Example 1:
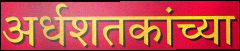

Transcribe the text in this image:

अर्धशतकांच्या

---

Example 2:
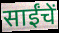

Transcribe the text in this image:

साईंचें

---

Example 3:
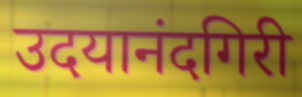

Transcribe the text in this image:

उदयानंदगिरी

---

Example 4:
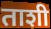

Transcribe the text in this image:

ताशी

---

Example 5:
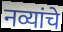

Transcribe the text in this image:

नव्यांचे